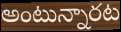
అంటున్నారట